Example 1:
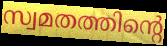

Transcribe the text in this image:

സ്വമതത്തിന്റെ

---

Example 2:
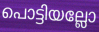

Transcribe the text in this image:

പൊട്ടിയല്ലോ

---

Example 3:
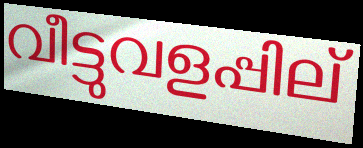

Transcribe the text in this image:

വീട്ടുവളപ്പില്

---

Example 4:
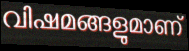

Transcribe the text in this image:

വിഷമങ്ങളുമാണ്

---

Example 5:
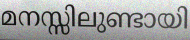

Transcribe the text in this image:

മനസ്സിലുണ്ടായി